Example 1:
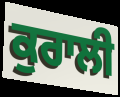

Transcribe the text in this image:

ਕੁਰਾਲੀ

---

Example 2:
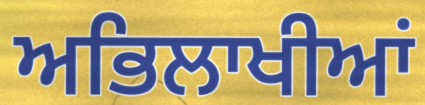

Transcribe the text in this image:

ਅਭਿਲਾਖੀਆਂ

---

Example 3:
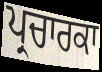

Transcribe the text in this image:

ਪ੍ਰਚਾਰਕਾ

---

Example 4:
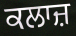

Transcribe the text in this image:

ਕਲਾਜ਼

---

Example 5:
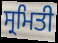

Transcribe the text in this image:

ਸ੍ਰਮਿਤੀ